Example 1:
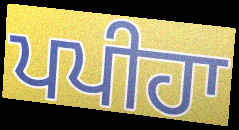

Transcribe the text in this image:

ਪਪੀਹਾ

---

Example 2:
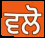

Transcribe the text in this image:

ਵਲੋ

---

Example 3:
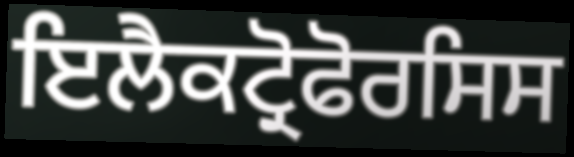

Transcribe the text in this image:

ਇਲੈਕਟ੍ਰੋਫੋਰਸਿਸ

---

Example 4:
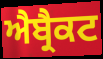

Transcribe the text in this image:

ਐਬ੍ਰੈਕਟ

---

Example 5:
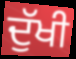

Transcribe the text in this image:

ਦੁੱਖੀ